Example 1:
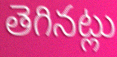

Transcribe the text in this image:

తెగినట్లు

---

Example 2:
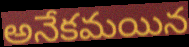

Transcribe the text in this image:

అనేకమయిన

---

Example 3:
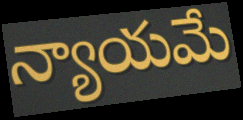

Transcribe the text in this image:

న్యాయమే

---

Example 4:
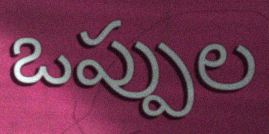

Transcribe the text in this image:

ఒప్పుల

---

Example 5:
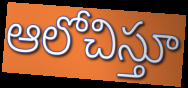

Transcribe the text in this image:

ఆలోచిస్తూ